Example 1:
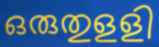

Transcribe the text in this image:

ഒരുതുളളി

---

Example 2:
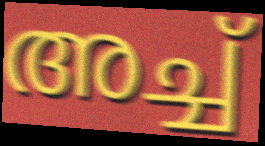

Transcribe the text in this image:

അച്ച്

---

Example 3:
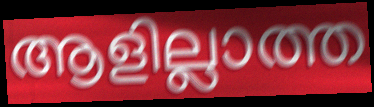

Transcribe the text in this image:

ആളില്ലാത്ത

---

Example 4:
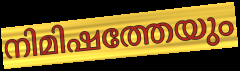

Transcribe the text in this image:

നിമിഷത്തേയും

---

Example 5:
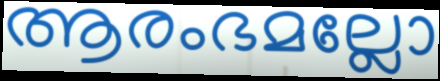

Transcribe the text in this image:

ആരംഭമല്ലോ